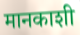
मानकाशी